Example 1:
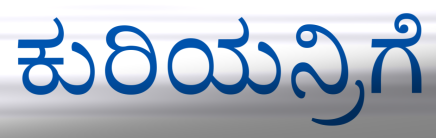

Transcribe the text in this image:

ಕುರಿಯನ್ರಿಗೆ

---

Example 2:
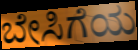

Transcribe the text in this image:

ಬೇಸಿಗೆಯ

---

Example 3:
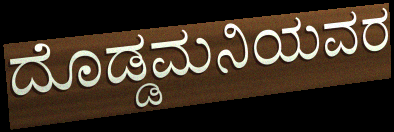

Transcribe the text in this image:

ದೊಡ್ಡಮನಿಯವರ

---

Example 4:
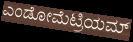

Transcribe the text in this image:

ಎಂಡೋಮೆಟ್ರಿಯಮ್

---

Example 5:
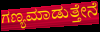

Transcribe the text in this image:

ಗಣ್ಯಮಾಡುತ್ತೇನೆ